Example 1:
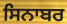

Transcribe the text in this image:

ਸਿਨਾਬਰ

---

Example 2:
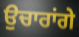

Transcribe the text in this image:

ਉਚਾਰਾਂਗੇ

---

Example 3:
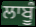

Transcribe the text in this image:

ਲਾਬੂੰ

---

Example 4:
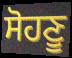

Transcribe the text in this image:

ਸੋਹਣੂ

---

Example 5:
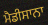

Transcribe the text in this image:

ਮੈਡੀਸਾਨਾ